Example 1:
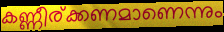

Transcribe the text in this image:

കണ്ണീര്ക്കണമാണെന്നും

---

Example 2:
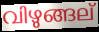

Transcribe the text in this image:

വിഴുങ്ങല്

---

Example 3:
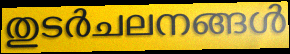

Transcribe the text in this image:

തുടർചലനങ്ങൾ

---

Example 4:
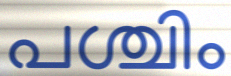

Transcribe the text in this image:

പശ്ചിം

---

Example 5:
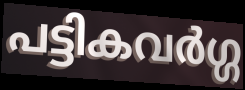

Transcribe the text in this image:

പട്ടികവർഗ്ഗ